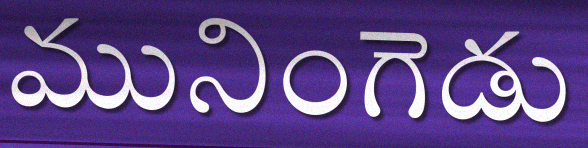
మునింగెడు